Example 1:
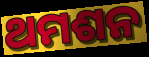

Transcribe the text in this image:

ଥମଶନ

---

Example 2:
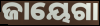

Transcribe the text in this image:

ଜାୟେଗା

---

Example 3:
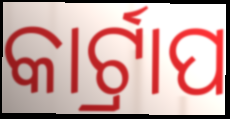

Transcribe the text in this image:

କାର୍ଟ୍ରାପ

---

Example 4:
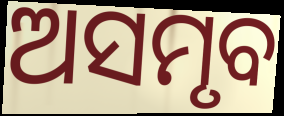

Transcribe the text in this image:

ଅସମୃବ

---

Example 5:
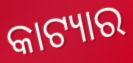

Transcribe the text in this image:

କାଟ୍ୟାର